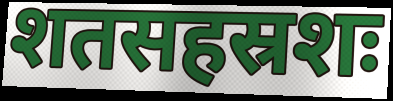
शतसहस्रशः